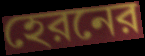
হেরনের